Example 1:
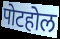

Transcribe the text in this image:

पोटहोल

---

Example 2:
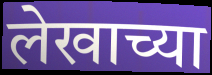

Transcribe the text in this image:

लेखाच्या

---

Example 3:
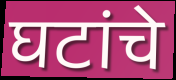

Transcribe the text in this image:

घटांचे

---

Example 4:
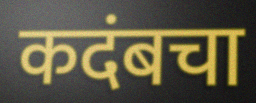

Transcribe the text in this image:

कदंबचा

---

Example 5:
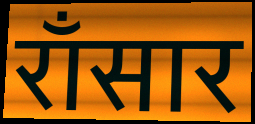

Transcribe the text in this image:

राँसार